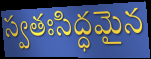
స్వతఃసిద్ధమైన